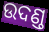
ଉଦଣ୍ଡ